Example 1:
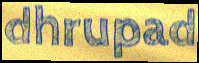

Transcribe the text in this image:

dhrupad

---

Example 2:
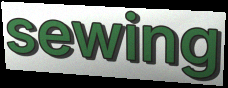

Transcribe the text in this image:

sewing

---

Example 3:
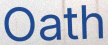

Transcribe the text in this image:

Oath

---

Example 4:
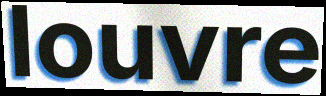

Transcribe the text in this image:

louvre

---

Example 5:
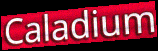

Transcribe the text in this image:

Caladium